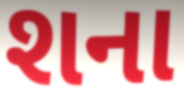
શના